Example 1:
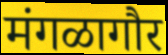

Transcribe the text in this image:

मंगळागौर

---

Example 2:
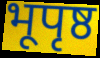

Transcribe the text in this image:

भूपृष्ठ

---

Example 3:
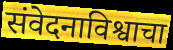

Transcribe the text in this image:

संवेदनाविश्वाचा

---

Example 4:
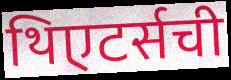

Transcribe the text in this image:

थिएटर्सची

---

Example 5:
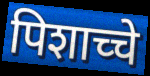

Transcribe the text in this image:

पिशाच्चे